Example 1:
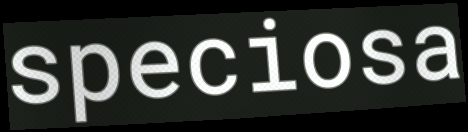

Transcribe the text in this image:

speciosa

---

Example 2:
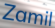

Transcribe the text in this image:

Zamil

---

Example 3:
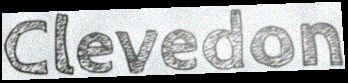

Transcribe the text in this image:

Clevedon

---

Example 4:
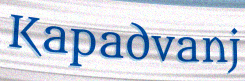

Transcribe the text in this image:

Kapadvanj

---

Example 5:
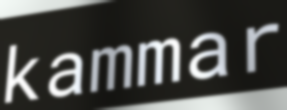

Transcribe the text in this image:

kammar